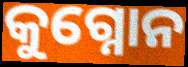
କୁଗ୍ନୋନ